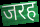
जरह